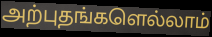
அற்புதங்களெல்லாம்